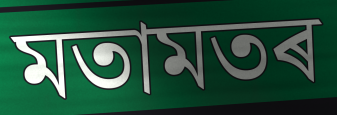
মতামতৰ